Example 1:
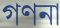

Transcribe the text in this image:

গণনা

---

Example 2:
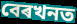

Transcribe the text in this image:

বেৰখনত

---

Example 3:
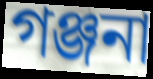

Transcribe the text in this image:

গঞ্জনা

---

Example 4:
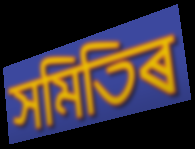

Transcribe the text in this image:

সমিতিৰ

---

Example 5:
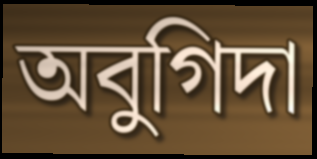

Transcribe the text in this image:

অবুগিদা